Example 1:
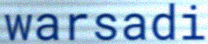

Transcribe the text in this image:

warsadi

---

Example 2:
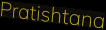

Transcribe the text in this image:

Pratishtana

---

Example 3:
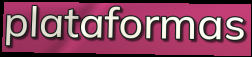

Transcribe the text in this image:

plataformas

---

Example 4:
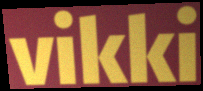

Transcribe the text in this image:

vikki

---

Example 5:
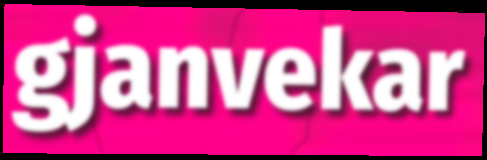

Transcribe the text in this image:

gjanvekar